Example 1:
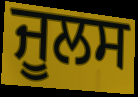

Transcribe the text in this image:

ਜੂਲਸ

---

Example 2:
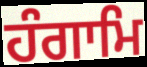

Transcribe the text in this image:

ਹੰਗਾਮਿ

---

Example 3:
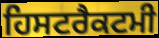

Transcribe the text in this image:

ਹਿਸਟਰੈਕਟਮੀ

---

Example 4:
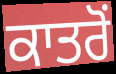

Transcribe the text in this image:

ਕਾਤਰੋੰ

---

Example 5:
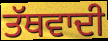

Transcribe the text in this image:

ਤੱਥਵਾਦੀ